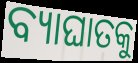
ବ୍ୟାଘାତକୁ